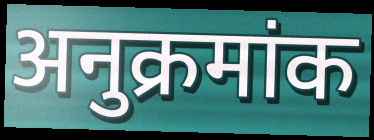
अनुक्रमांक